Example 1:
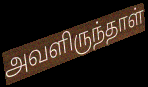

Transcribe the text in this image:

அவளிருந்தாள்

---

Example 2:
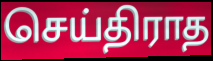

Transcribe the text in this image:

செய்திராத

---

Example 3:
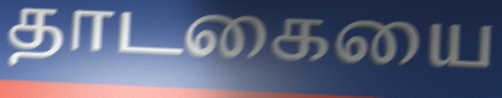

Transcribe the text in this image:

தாடகையை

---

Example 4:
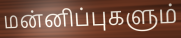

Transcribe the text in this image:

மன்னிப்புகளும்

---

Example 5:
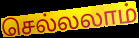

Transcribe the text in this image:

செல்லலாம்